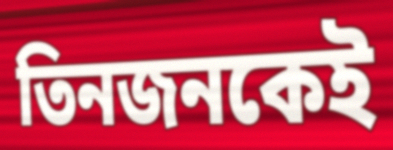
তিনজনকেই